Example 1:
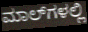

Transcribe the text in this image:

ಮಾಲ್‌ಗಳಲ್ಲಿ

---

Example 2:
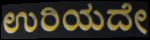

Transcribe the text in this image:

ಉರಿಯದೇ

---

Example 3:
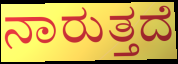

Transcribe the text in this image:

ನಾರುತ್ತದೆ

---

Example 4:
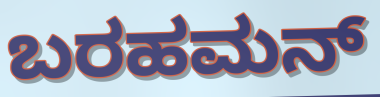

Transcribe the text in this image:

ಬರಹಮನ್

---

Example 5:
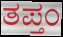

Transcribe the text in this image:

ತಪ್ತಂ